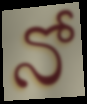
నో